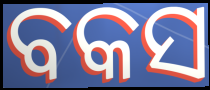
ବକସ